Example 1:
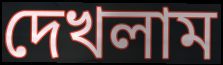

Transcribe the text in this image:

দেখলাম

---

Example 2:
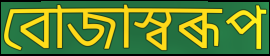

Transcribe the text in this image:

বোজাস্বৰূপ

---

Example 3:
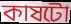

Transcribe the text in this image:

কাষটো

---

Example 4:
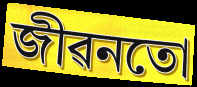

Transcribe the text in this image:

জীৱনতো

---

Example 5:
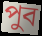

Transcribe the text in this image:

পুব